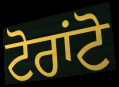
ਟੋਰਾਂਟੋ